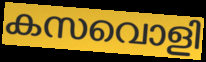
കസവൊളി